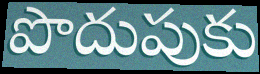
పొదుపుకు